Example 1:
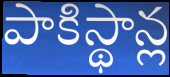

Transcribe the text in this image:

పాకిస్థాన్ల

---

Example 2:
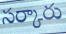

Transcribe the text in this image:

సర్కారు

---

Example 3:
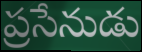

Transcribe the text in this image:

ప్రసేనుడు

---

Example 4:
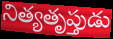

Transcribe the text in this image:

నిత్యతృప్తుడు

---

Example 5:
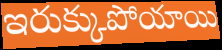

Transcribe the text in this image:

ఇరుక్కుపోయాయి